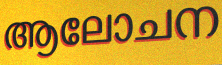
ആലോചന